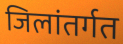
जिलांतर्गत